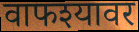
वाफश्यावर